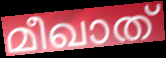
മീഖാത്